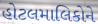
હોટલમાલિકોને